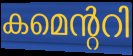
കമെന്ററി